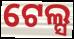
ଟେଲ୍ସ